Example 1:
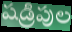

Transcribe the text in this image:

షడ్రిపుల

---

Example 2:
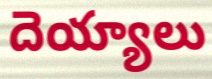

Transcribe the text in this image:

దెయ్యాలు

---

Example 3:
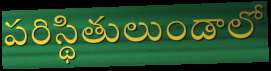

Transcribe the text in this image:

పరిస్థితులుండాలో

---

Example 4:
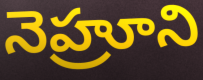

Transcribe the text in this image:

నెహ్రూని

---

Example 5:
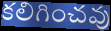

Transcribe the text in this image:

కలిగించవు